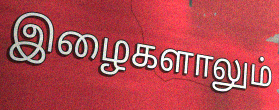
இழைகளாலும்